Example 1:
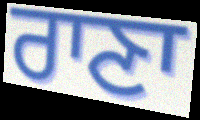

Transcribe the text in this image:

ਰਾਣਾ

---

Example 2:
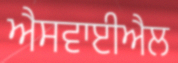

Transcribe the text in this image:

ਐਸਵਾਈਐਲ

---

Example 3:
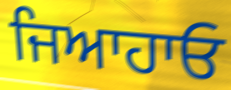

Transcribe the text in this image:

ਜਿਆਹਾਓ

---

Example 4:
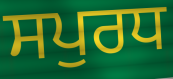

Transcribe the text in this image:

ਸਪੁਰਧ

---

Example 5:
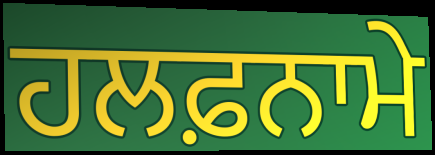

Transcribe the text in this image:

ਹਲਫ਼ਨਾਮੇ